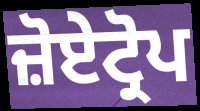
ਜ਼ੋਏਟ੍ਰੋਪ